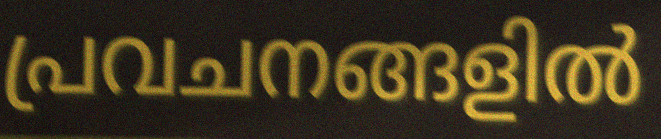
പ്രവചനങ്ങളിൽ